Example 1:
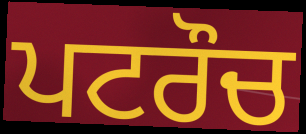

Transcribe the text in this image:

ਪਟਰੌਚ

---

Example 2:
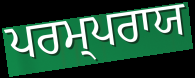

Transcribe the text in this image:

ਪਰਮ੍ਪਰਾਯ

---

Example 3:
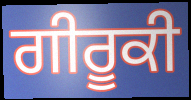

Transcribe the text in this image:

ਗੀਰੂਕੀ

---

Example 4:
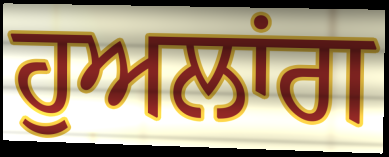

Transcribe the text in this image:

ਹੁਅਲਾਂਗ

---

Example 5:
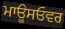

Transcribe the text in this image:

ਮਾਊਸਓਵਰ